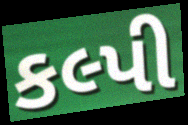
કલ્પી